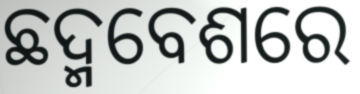
ଛଦ୍ମବେଶରେ